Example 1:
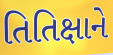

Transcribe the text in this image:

તિતિક્ષાને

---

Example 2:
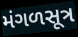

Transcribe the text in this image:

મંગળસૂત્ર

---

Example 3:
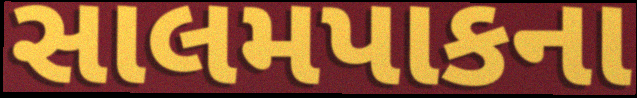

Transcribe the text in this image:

સાલમપાકના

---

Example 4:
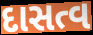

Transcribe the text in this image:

દાસત્વ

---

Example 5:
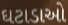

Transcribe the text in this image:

ઘટાડાઓ